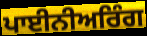
ਪਾਈਨੀਅਰਿੰਗ